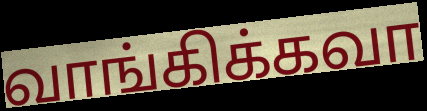
வாங்கிக்கவா